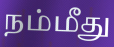
நம்மீது